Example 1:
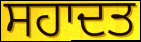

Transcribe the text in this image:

ਸਹਾਦਤ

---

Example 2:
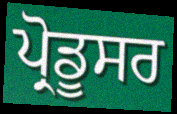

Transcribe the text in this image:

ਪ੍ਰੋਡੂਸਰ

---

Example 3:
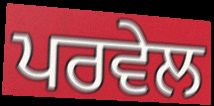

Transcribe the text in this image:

ਪਰਵੇਲ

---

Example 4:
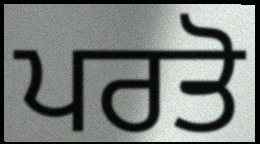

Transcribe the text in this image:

ਪਰਤੋ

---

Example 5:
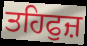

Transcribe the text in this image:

ਤਹਿਫੁਜ਼